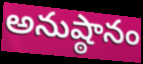
అనుష్ఠానం